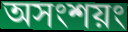
অসংশয়ং